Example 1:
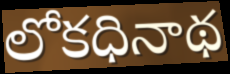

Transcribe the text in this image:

లోకధినాథ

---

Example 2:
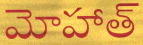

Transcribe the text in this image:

మోహాత్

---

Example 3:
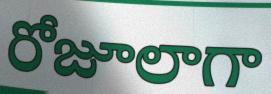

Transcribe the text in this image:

రోజూలాగా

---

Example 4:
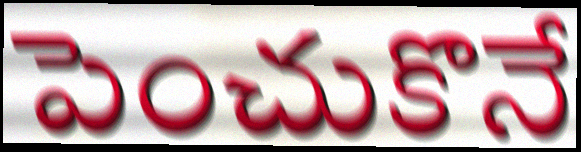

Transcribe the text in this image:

పెంచుకొనే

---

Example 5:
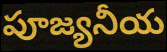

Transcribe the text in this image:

పూజ్యనీయ